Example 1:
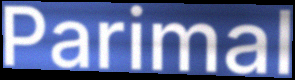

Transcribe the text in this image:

Parimal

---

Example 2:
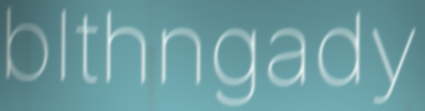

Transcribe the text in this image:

blthngady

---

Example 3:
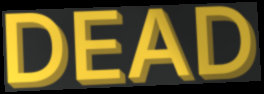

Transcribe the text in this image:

DEAD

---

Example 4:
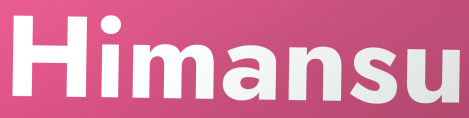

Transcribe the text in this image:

Himansu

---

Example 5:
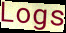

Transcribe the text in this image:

Logs